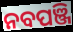
ନବପଞ୍ଜି